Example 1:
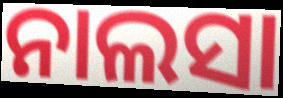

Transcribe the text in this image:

ନାଲସା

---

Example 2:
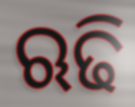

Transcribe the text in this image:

ଋଢି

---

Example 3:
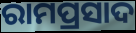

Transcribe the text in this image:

ରାମପ୍ରସାଦ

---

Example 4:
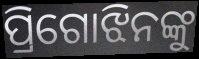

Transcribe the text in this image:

ପ୍ରିଗୋଝିନଙ୍କୁ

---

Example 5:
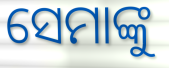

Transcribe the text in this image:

ସେମାଙ୍କୁ